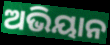
ଅଭିୟାନ